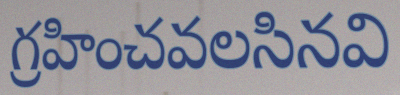
గ్రహించవలసినవి